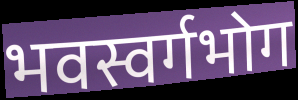
भवस्वर्गभोग